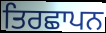
ਤਿਰਛਾਪਨ